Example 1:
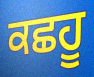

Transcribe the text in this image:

ਕਛਹੂ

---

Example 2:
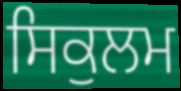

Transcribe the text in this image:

ਸਿਕੁਲਮ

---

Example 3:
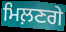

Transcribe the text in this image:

ਮਿਲ਼ਣਗੇ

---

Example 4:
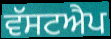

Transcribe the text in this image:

ਵੱਸਟਐਪ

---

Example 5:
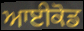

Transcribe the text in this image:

ਆਈਕੋਡ